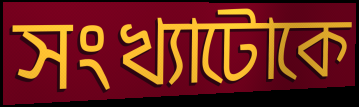
সংখ্যাটোকে